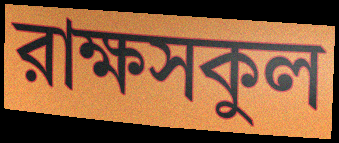
রাক্ষসকুল